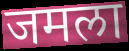
जमला